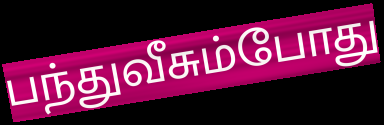
பந்துவீசும்போது